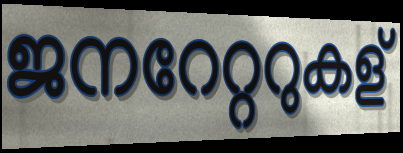
ജനറേറ്ററുകള്